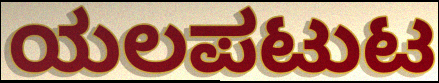
ಯಲಪಟುಟ